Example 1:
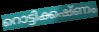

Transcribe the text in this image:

റൊട്ടിക്കഷ്ണം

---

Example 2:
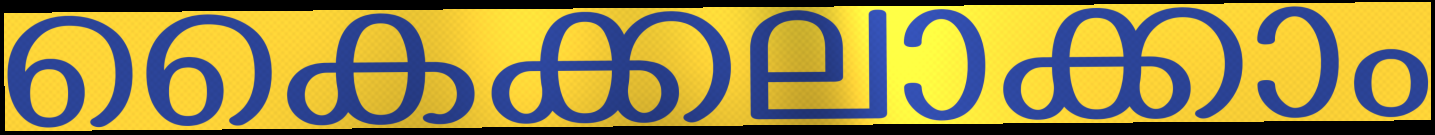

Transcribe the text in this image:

കൈക്കലാക്കാം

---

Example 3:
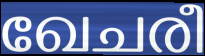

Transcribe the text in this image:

ഖേചരീ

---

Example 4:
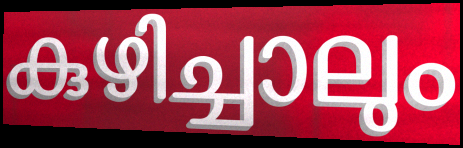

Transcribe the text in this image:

കുഴിച്ചാലും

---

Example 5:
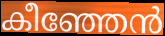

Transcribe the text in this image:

കീഞ്ഞേൻ